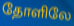
தோளிலே